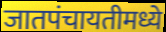
जातपंचायतीमध्ये